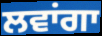
ਲਵਾਂਗਾ